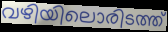
വഴിയിലൊരിടത്ത്